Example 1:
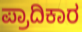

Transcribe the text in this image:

ಪ್ರಾದಿಕಾರ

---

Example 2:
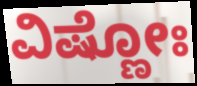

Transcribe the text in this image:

ವಿಷ್ಣೋಃ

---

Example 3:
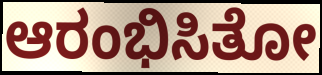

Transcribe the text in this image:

ಆರಂಭಿಸಿತೋ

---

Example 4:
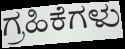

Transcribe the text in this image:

ಗ್ರಹಿಕೆಗಳು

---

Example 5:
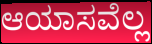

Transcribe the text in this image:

ಆಯಾಸವೆಲ್ಲ